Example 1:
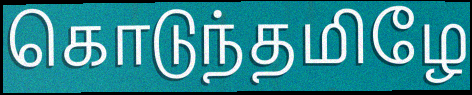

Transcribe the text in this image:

கொடுந்தமிழே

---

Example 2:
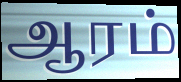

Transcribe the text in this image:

ஆரம்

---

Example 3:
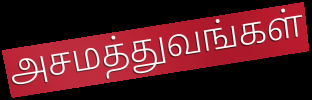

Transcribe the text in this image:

அசமத்துவங்கள்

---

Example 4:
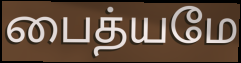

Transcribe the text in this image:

பைத்யமே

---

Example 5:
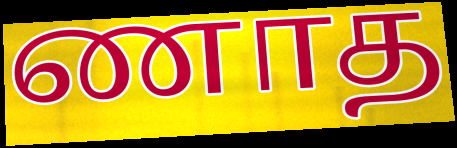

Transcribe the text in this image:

ணாத